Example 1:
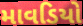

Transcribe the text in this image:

માવડિયો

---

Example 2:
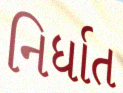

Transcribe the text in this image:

નિર્ધાત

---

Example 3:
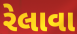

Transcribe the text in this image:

રેલાવા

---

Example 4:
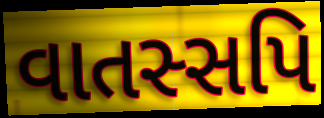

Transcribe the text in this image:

વાતસ્સપિ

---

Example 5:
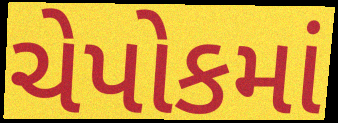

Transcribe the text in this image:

ચેપોકમાં